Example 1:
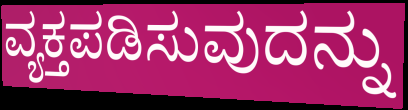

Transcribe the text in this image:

ವ್ಯಕ್ತಪಡಿಸುವುದನ್ನು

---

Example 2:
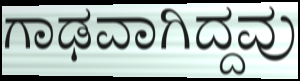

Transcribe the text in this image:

ಗಾಢವಾಗಿದ್ದವು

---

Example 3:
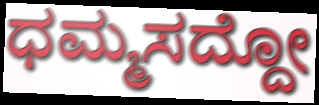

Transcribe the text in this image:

ಧಮ್ಮಸದ್ದೋ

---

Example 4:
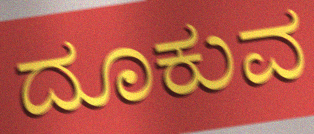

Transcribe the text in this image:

ದೂಕುವ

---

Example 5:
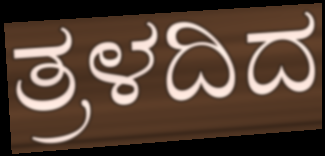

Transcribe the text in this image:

ತ್ರಳದಿದ